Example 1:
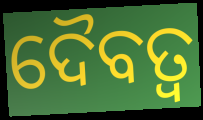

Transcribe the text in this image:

ଦୈବତ୍ଵ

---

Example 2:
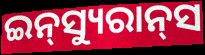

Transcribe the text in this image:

ଇନ୍‌ସ୍ୟୁରାନ୍‌ସ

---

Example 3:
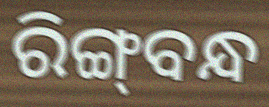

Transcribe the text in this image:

ରିଙ୍ଗ୍‌ବନ୍ଧ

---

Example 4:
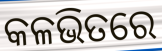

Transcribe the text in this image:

କଳଭିତରେ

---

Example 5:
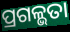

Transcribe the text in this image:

ପ୍ରଗଳ୍ଭତା